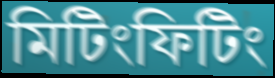
মিটিংফিটিং